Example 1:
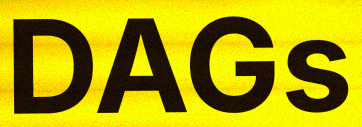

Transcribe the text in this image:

DAGs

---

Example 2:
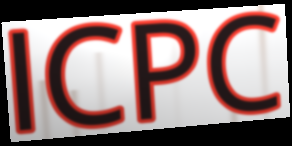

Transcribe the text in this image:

ICPC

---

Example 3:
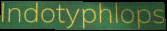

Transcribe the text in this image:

Indotyphlops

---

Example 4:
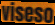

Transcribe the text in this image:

viseso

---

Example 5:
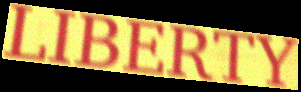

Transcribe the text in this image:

LIBERTY